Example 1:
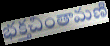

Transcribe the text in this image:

భక్తచింతామణి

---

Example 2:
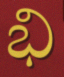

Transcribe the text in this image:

భి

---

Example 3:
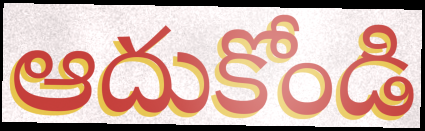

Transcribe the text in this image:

ఆదుకోండి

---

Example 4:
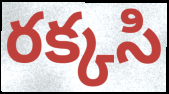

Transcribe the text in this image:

రక్కసి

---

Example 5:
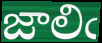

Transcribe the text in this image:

జాలిఁ